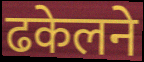
ढकेलने